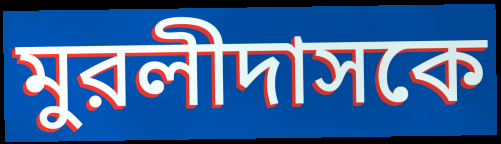
মুরলীদাসকে